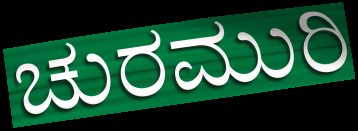
ಚುರಮುರಿ